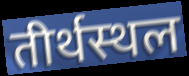
तीर्थस्थल